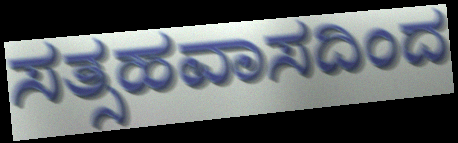
ಸತ್ಸಹವಾಸದಿಂದ